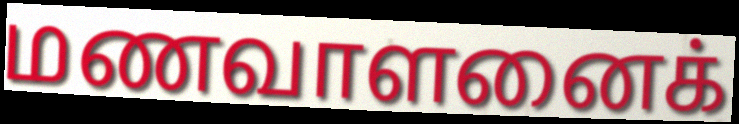
மணவாளனைக்